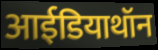
आईडियाथॉन